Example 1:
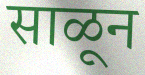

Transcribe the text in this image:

साळून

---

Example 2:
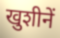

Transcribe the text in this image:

खुशीनें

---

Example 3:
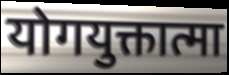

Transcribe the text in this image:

योगयुक्तात्मा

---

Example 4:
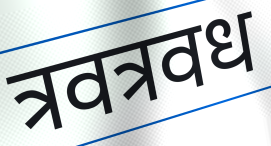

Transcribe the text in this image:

त्रवत्रवध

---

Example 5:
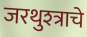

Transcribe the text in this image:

जरथुश्त्राचे